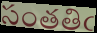
సంతతిఁ